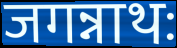
जगन्नाथः